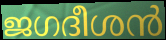
ജഗദീശൻ